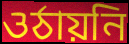
ওঠায়নি